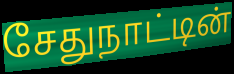
சேதுநாட்டின்